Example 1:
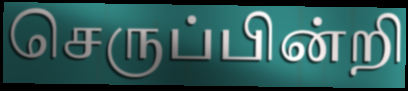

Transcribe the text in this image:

செருப்பின்றி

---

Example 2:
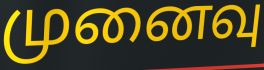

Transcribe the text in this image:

முனைவு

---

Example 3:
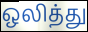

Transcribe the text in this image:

ஒலித்து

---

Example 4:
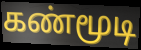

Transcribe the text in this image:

கண்மூடி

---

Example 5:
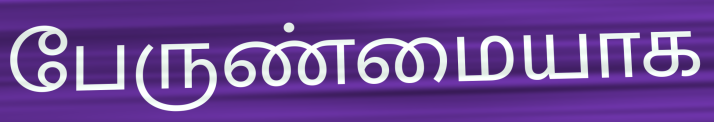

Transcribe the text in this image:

பேருண்மையாக